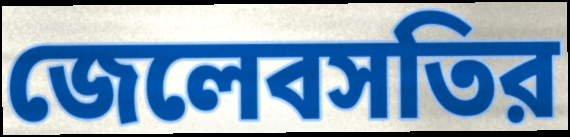
জেলেবসতির